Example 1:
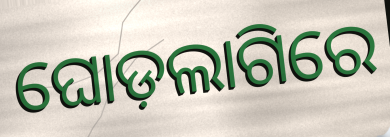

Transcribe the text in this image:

ଘୋଡ଼ଲାଗିରେ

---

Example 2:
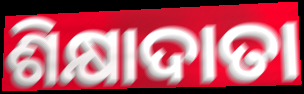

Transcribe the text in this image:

ଶିକ୍ଷାଦାତା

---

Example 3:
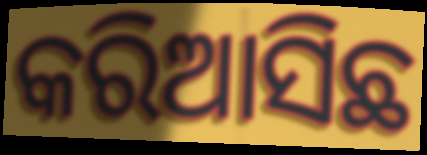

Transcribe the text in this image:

କରିଆସିଛ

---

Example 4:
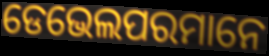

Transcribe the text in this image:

ଡେଭେଲପରମାନେ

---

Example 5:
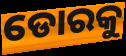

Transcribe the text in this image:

ଡୋରକୁ